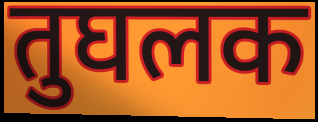
तुघलक